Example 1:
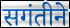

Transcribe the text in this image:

सगंतीने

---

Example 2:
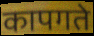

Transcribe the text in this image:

कापगते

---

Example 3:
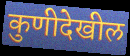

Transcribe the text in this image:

कुणीदेखील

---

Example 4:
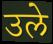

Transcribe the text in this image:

उले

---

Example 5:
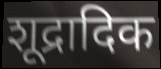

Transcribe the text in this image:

शूद्रादिक